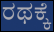
ರಥಕ್ಕೆ